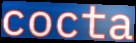
cocta